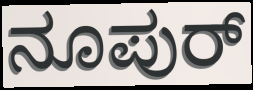
ನೂಪುರ್